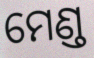
ମେଣ୍ଡ